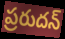
ప్రరుదన్